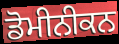
ਡੋਮੀਨੀਕਨ